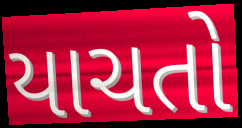
યાચતો